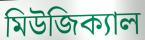
মিউজিক্যাল